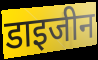
डाइजीन